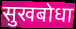
सुखबोधा